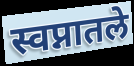
स्वप्नातले